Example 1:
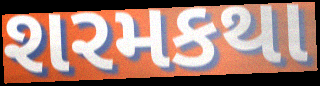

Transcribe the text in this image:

શરમકથા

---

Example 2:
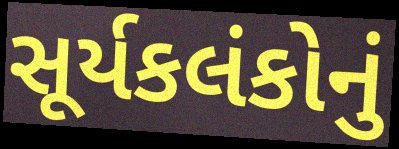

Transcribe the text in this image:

સૂર્યકલંકોનું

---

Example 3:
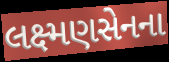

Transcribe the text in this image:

લક્ષ્મણસેનના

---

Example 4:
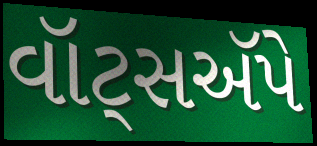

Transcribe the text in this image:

વૉટ્સઍપે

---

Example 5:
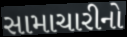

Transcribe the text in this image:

સામાચારીનો